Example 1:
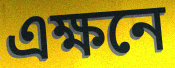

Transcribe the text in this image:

এক্ষনে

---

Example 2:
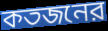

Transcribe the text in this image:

কতজনের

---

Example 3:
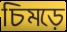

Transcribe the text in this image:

চিমড়ে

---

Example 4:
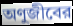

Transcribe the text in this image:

অণুজীবের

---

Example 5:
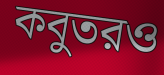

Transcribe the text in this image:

কবুতরও